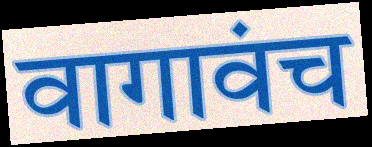
वागावंच